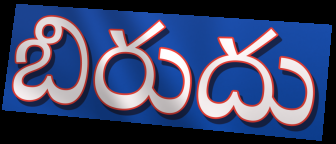
బిరుదు